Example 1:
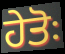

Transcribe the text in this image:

ਹੇਤੋਃ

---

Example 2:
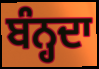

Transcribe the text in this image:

ਬੰਨ੍ਹਦਾ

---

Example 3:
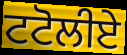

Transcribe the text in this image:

ਟਟੋਲੀਏ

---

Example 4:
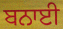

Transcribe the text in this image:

ਬਨਾਈ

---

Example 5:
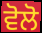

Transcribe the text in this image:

ਵੋਲੋ